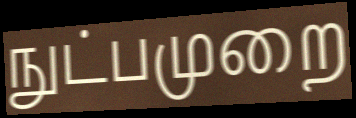
நுட்பமுறை